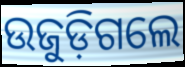
ଉଜୁଡ଼ିଗଲେ